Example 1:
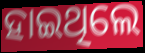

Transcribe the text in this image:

ହାଇଥିଲେ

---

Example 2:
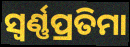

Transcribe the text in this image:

ସ୍ୱର୍ଣ୍ଣପ୍ରତିମା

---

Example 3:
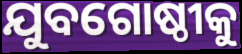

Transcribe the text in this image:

ଯୁବଗୋଷ୍ଠୀକୁ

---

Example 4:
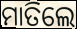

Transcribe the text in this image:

ମାତିଲେ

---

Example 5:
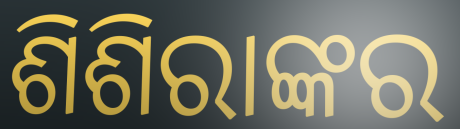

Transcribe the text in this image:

ଶିଶିରାଙ୍କର